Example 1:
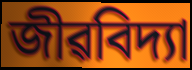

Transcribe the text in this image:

জীৱবিদ্যা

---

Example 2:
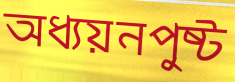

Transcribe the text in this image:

অধ্যয়নপুষ্ট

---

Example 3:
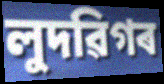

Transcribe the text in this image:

লুদৱিগৰ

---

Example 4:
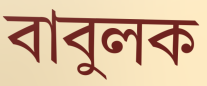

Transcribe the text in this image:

বাবুলক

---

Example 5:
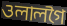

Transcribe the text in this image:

ওলালগৈ